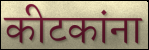
कीटकांना